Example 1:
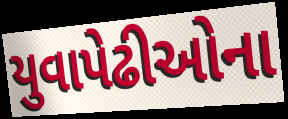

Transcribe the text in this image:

યુવાપેઢીઓના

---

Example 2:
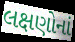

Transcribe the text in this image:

લક્ષણોનાં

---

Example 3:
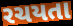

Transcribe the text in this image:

રચયતા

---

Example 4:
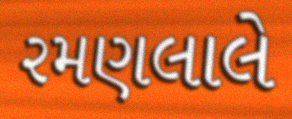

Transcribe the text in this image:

રમણલાલે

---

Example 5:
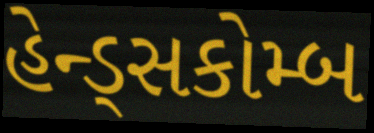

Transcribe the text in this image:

હેન્ડ્સકોમ્બ